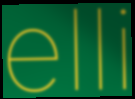
elli